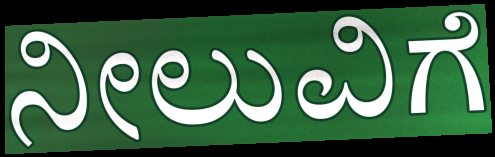
ನೀಲುವಿಗೆ